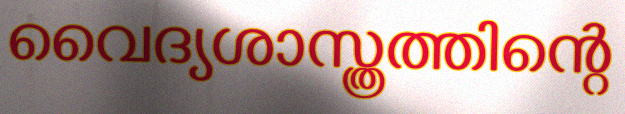
വൈദ്യശാസ്ത്രത്തിന്റെ